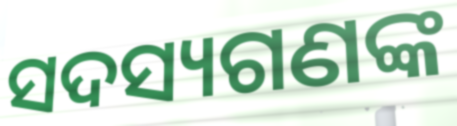
ସଦସ୍ୟଗଣଙ୍କ